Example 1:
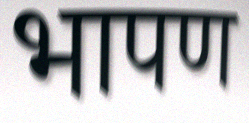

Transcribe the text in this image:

भापण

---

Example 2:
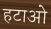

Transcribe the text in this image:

हटाओ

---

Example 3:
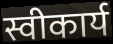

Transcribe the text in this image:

स्‍वीकार्य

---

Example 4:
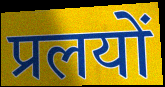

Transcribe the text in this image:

प्रलयों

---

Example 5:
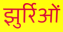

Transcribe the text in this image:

झुर्रिओं